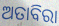
ଅତାବିରା